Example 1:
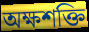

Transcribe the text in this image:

অক্ষশক্তি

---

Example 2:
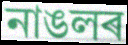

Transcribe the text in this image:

নাঙলৰ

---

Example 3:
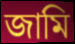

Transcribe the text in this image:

জামি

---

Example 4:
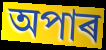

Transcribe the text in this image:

অপাৰ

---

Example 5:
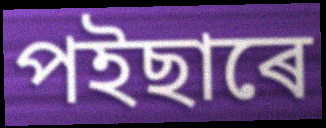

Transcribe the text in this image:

পইছাৰে